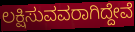
ಲಕ್ಷಿಸುವವರಾಗಿದ್ದೇವೆ